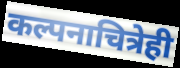
कल्पनाचित्रेही